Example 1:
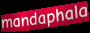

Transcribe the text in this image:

mandaphala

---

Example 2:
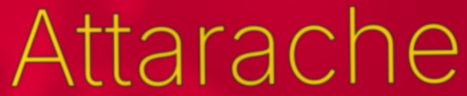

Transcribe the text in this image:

Attarache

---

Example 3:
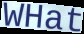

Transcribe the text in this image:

WHat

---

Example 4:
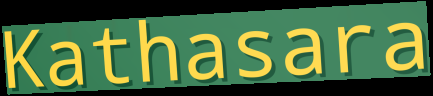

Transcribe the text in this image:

Kathasara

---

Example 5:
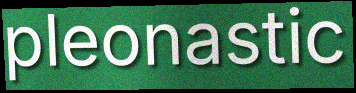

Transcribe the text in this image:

pleonastic